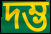
দম্ভ